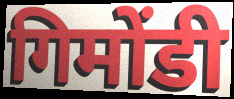
गिमोंडी